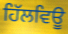
ਹਿੱਲਵਿਊ